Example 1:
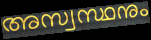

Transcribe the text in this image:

അസ്വസ്ഥനും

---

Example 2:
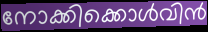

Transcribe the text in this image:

നോക്കിക്കൊൾവിൻ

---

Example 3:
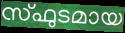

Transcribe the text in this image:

സ്ഫുടമായ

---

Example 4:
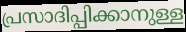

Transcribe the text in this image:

പ്രസാദിപ്പിക്കാനുള്ള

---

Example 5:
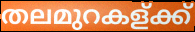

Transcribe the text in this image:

തലമുറകള്ക്ക്